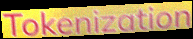
Tokenization